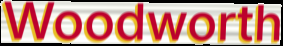
Woodworth